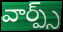
వార్ప్స్